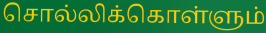
சொல்லிக்கொள்ளும்